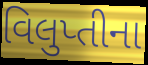
વિલુપ્તીના